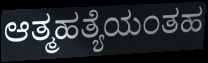
ಆತ್ಮಹತ್ಯೆಯಂತಹ